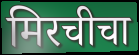
मिरचीचा